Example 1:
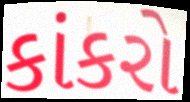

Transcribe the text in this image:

કાંકરો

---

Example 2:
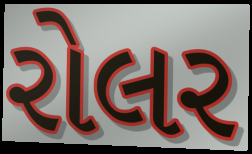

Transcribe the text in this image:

રોલર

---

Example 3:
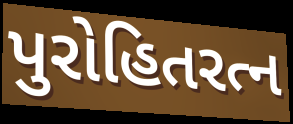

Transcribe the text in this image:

પુરોહિતરત્ન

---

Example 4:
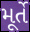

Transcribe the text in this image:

મૂર્તે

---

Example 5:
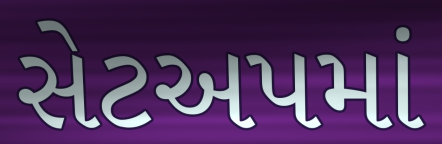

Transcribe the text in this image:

સેટઅપમાં